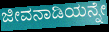
ಜೀವನಾಡಿಯನ್ನೇ